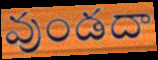
వుండదా